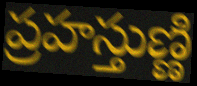
ప్రహస్తుణ్ణి